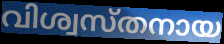
വിശ്വസ്തനായ